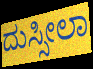
ದುಸ್ಸೀಲಾ